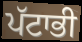
ਪੱਟਾਭੀ